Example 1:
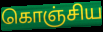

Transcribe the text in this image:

கொஞ்சிய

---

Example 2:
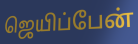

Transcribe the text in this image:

ஜெயிப்பேன்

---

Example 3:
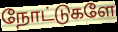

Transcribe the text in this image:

நோட்டுகளே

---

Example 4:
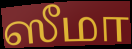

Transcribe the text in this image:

ஸீமா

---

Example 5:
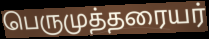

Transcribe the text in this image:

பெருமுத்தரையர்